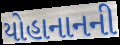
યોહાનાનની